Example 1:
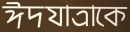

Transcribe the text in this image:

ঈদযাত্রাকে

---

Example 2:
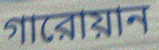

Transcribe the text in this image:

গারোয়ান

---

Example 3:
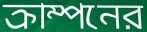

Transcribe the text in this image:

ক্রাম্পনের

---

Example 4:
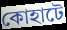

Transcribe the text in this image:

কোহাটে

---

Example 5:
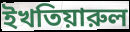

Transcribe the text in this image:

ইখতিয়ারুল